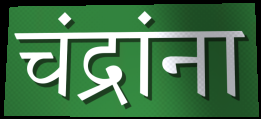
चंद्रांना